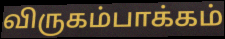
விருகம்பாக்கம்